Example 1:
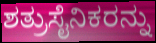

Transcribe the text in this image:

ಶತ್ರುಸೈನಿಕರನ್ನು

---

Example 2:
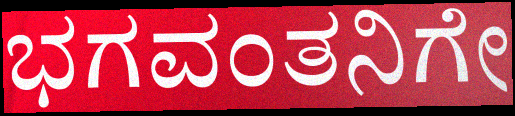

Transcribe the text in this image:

ಭಗವಂತನಿಗೇ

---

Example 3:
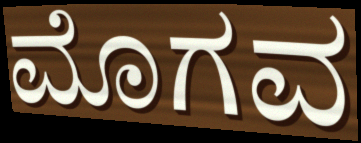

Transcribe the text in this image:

ಮೊಗವ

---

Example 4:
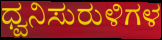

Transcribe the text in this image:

ಧ್ವನಿಸುರುಳಿಗಳ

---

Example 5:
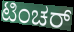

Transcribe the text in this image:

ಟಿಂಚರ್